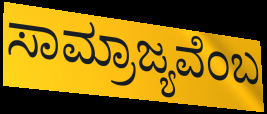
ಸಾಮ್ರಾಜ್ಯವೆಂಬ